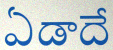
ఏడాదే